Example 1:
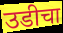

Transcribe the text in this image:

उडीचा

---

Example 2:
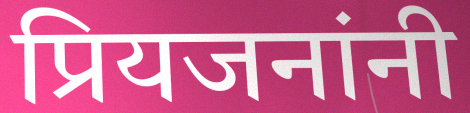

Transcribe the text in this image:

प्रियजनांनी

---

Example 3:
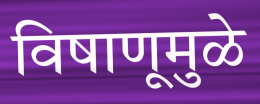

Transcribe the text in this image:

विषाणूमुळे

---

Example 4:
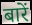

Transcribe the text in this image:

बारें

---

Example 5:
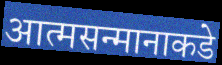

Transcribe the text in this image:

आत्मसन्मानाकडे